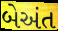
બેઅંત